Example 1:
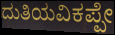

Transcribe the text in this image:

ದುತಿಯವಿಕಪ್ಪೇ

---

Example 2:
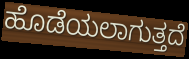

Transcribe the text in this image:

ಹೊಡೆಯಲಾಗುತ್ತದೆ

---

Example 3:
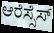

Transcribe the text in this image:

ಆರೆಸ್ಸೆಸ್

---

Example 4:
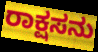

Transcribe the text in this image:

ರಾಕ್ಷಸನು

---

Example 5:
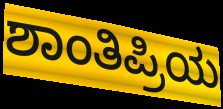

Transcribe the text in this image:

ಶಾಂತಿಪ್ರಿಯ